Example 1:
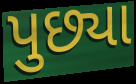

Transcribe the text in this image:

પુછ્યા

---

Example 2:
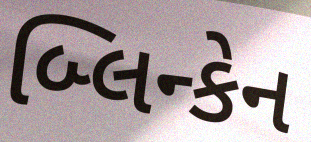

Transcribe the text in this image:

બ્લિન્કેન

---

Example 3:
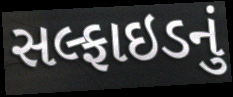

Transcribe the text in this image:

સલ્ફાઇડનું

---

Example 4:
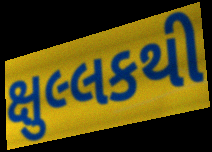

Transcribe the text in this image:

ક્ષુલ્લકથી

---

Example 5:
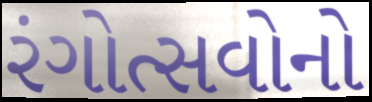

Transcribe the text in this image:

રંગોત્સવોનો